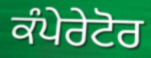
ਕੰਪੇਰੇਟੋਰ